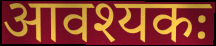
आवश्यकः